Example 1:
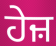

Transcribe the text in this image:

ਹੇਜ਼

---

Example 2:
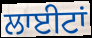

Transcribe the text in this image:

ਲਾਈਟਾਂ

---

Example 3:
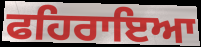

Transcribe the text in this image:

ਫਹਿਰਾਇਆ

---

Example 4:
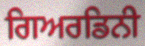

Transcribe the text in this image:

ਗਿਅਰਡਿਨੀ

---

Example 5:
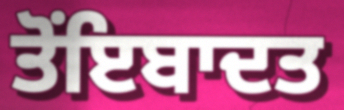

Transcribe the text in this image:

ਤੋਂਇਬਾਦਤ